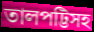
তালপট্টিসহ